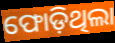
ଫୋଡ଼ିଥିଲା